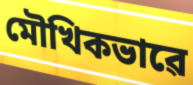
মৌখিকভাৱে